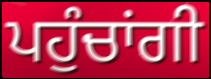
ਪਹੁੰਚਾਂਗੀ